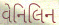
વેનિલિન